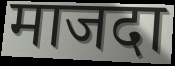
माजदा